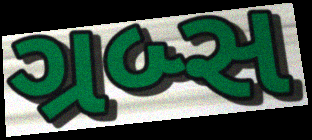
ગ્રબ્સ